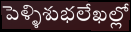
పెళ్ళిశుభలేఖల్లో